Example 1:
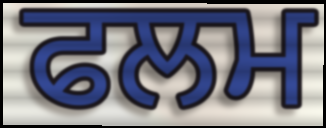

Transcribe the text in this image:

ਫਲਮ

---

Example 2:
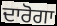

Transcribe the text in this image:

ਦਾਰੋਗਾ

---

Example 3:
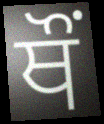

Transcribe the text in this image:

ਥੌਂ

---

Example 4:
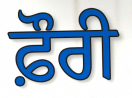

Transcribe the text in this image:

ਫ਼ੌਰੀ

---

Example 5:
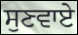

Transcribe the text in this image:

ਸੁਣਵਾਏ